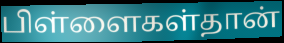
பிள்ளைகள்தான்